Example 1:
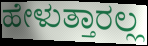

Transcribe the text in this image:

ಹೇಳುತ್ತಾರಲ್ಲ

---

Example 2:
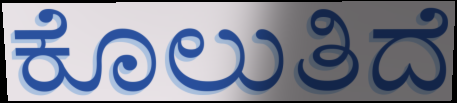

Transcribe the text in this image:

ಕೊಲುತಿದೆ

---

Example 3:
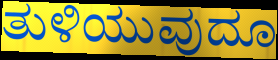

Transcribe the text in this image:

ತುಳಿಯುವುದೂ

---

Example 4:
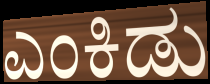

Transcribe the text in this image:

ಎಂಕಿಡು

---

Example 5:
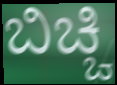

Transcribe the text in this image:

ಬಿಚ್ಚಿ